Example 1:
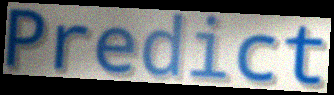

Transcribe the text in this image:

Predict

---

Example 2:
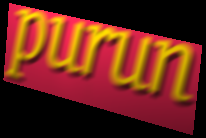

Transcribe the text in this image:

purun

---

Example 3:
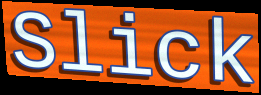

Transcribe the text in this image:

Slick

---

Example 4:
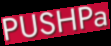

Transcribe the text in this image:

PUSHPa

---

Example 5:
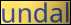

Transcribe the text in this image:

undal